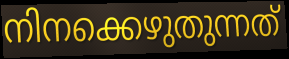
നിനക്കെഴുതുന്നത്